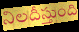
నిలదీస్తుంది